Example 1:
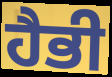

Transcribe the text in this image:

ਹੈਭੀ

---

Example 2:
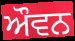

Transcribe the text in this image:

ਔਵਨ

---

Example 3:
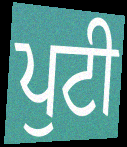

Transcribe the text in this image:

ਪੁਟੀ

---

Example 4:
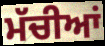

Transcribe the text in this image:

ਮੱਚੀਆਂ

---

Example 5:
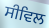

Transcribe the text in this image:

ਸੀਵਿਲ